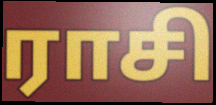
ராசி